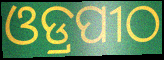
ଓଡ୍ରପୀଠ